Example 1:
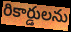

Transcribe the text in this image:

రికార్డులను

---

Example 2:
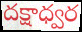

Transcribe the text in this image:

దక్షాధ్వర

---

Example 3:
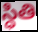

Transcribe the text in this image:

స్ధితి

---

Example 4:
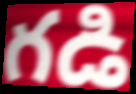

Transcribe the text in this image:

గడి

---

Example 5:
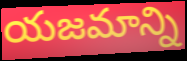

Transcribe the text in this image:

యజమాన్ని